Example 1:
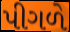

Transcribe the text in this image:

પીગળે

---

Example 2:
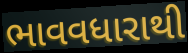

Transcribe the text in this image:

ભાવવધારાથી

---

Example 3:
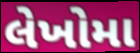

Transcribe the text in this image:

લેખોમા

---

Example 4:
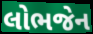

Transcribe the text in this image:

લોભજેન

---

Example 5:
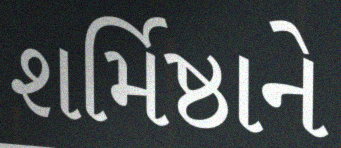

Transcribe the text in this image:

શર્મિષ્ઠાને